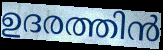
ഉദരത്തിൻ